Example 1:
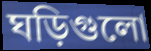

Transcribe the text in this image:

ঘড়িগুলো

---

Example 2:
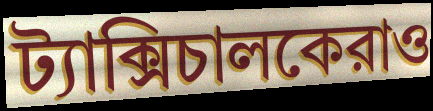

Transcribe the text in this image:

ট্যাক্সিচালকেরাও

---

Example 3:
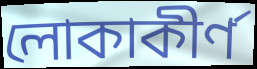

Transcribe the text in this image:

লোকাকীর্ণ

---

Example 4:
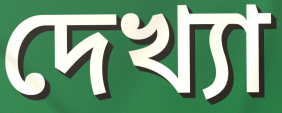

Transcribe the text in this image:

দেখ্যা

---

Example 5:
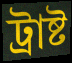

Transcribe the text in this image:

ট্রাষ্ট